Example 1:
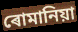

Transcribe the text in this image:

ৰোমানিয়া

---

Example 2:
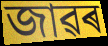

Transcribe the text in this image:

জাৱৰ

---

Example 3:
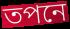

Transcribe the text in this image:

তপনে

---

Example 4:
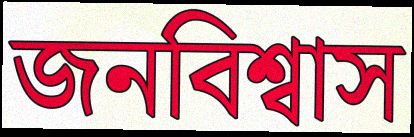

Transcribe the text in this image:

জনবিশ্বাস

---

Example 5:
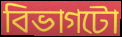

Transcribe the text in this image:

বিভাগটো